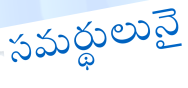
సమర్థులునై